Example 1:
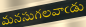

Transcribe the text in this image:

మనసుగలవాఁడు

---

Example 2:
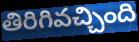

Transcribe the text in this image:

తిరిగివచ్చింది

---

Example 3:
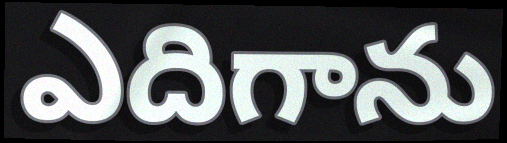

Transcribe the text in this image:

ఎదిగాను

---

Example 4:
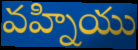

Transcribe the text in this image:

వహ్నియు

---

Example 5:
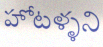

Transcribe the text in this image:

హోటళ్ళని